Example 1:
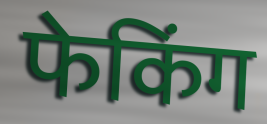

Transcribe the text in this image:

फेकिंग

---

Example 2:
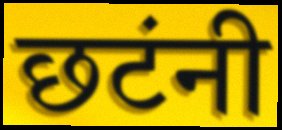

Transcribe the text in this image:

छटंनी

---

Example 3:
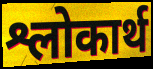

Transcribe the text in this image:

श्लोकार्थ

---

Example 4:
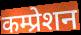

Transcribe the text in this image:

कम्प्रेशन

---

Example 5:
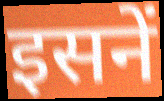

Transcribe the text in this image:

इसनें